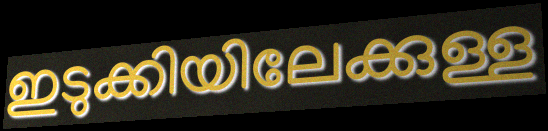
ഇടുക്കിയിലേക്കുള്ള